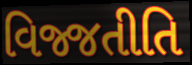
વિજ્જતીતિ